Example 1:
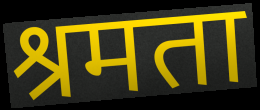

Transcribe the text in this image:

श्रमता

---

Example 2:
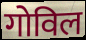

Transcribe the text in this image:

गोविल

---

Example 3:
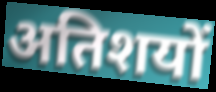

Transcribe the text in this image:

अतिशयों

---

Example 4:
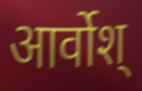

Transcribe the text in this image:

आर्वोश्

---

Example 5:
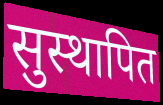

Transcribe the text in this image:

सुस्थापित